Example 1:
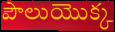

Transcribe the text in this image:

పౌలుయొక్క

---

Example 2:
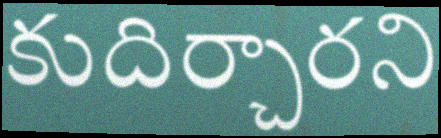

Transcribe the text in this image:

కుదిర్చారని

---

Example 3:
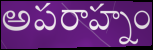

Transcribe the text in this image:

అపరాహ్నం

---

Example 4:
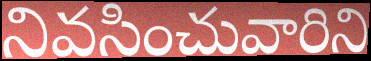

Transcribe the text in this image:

నివసించువారిని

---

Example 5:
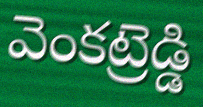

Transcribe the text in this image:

వెంకట్రెడ్డి